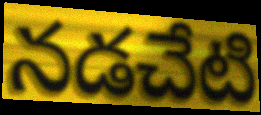
నడచేటి